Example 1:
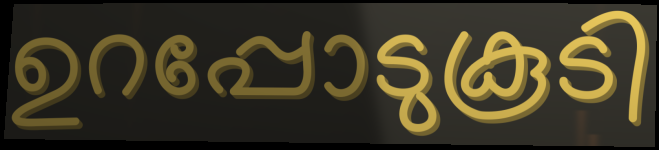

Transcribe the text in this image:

ഉറപ്പോടുകൂടി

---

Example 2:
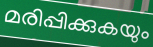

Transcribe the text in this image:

മരിപ്പിക്കുകയും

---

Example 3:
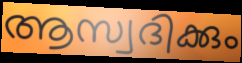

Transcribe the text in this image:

ആസ്വദിക്കും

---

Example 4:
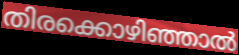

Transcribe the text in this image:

തിരക്കൊഴിഞ്ഞാൽ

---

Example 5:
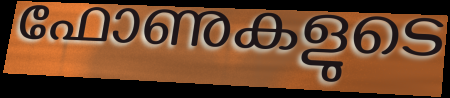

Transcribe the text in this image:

ഫോണുകളുടെ